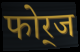
फोर्ज